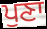
ਪੁਣਾ